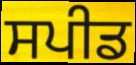
ਸਪੀਡ